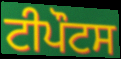
ਟੀਪੌਟਸ